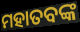
ମହାତବଙ୍କ